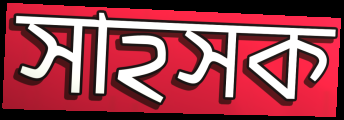
সাহসক